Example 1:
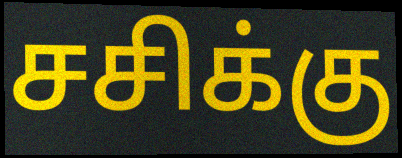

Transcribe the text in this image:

சசிக்கு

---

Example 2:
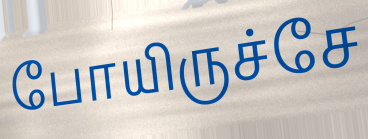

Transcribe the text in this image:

போயிருச்சே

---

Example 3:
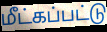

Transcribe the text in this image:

மீட்கப்பட்டு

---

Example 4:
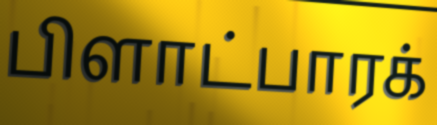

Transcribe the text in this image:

பிளாட்பாரக்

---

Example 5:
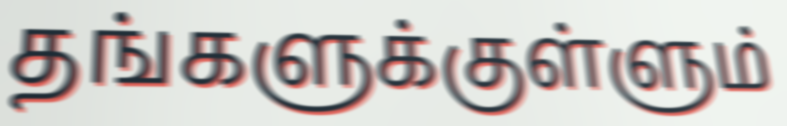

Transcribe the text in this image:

தங்களுக்குள்ளும்